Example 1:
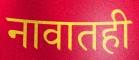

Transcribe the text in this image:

नावातही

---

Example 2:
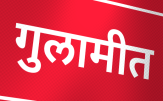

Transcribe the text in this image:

गुलामीत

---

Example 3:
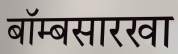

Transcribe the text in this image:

बॉम्बसारखा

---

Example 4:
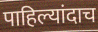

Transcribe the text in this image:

पाहिल्यांदाच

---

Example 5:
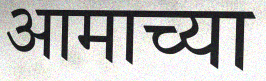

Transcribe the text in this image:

आमाच्या